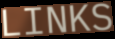
LINKS